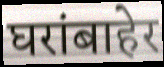
घरांबाहेर